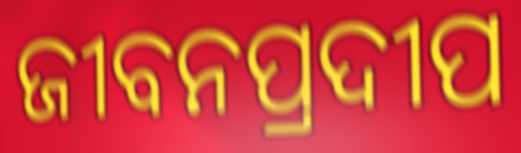
ଜୀବନପ୍ରଦୀପ